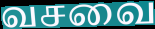
வசவை